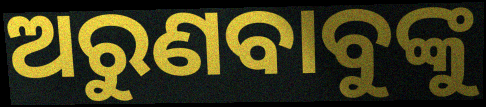
ଅରୁଣବାବୁଙ୍କୁ